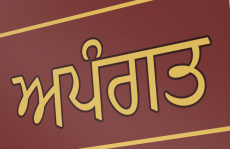
ਅਪੰਗਤ